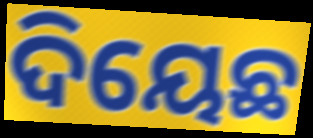
ଦିୟେଛ